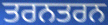
ਤਰਨਤਰਨ